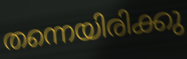
തന്നെയിരിക്കു